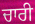
ਚਾਰੀ